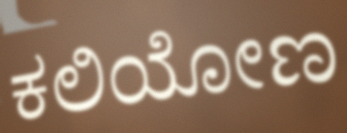
ಕಲಿಯೋಣ